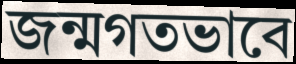
জন্মগতভাবে